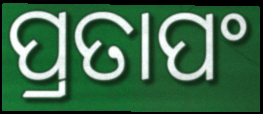
ପ୍ରତାପଂ